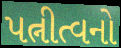
પત્નીત્વનો